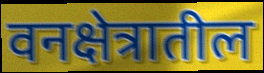
वनक्षेत्रातील